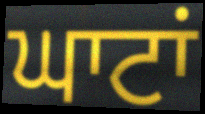
ਘਾਟਾਂ